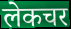
लेकचर